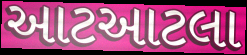
આટઆટલા